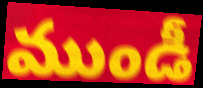
ముండీ